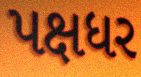
પક્ષધર